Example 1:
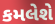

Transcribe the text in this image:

કમલેશે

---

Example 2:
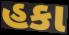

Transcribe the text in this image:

હકા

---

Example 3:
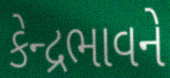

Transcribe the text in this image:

કેન્દ્રભાવને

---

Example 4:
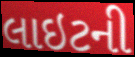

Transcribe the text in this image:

લાઇટની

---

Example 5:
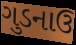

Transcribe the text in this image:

ગુડનાઉ